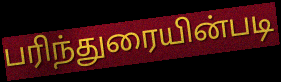
பரிந்துரையின்படி